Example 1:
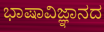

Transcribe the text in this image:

ಭಾಷಾವಿಜ್ಞಾನದ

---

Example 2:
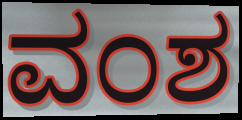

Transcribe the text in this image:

ವಂಶ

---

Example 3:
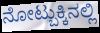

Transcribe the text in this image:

ನೋಟ್ಬುಕ್ಕಿನಲ್ಲಿ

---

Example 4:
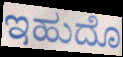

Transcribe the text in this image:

ಇಹುದೊ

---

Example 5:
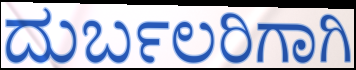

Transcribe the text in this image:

ದುರ್ಬಲರಿಗಾಗಿ